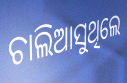
ଚାଲିଆସୁଥିଲେ